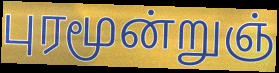
புரமூன்றுஞ்